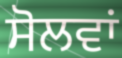
ਸੋਲਵਾਂ